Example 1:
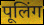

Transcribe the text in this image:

पूलिंग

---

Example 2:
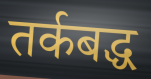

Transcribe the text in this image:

तर्कबद्ध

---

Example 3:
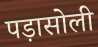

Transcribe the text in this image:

पड़ासोली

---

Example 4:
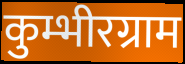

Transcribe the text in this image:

कुम्भीरग्राम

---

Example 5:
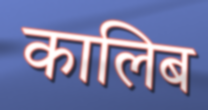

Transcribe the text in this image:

कालिब